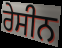
ਰੇਸੀਨ